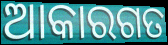
ଆକାରଗତ